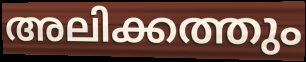
അലിക്കത്തും